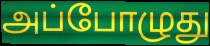
அப்போழுது